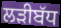
ਲੜੀਬੱਧ